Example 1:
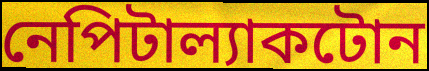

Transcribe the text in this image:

নেপিটাল্যাকটোন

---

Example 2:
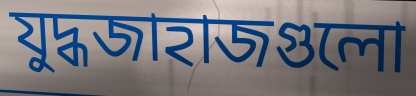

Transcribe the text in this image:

যুদ্ধজাহাজগুলো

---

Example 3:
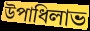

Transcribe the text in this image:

উপাধিলাভ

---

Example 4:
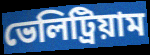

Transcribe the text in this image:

ভেলিট্রিয়াম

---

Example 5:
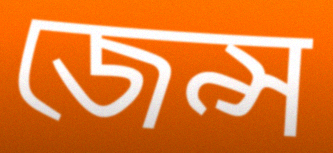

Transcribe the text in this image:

জেন্স